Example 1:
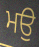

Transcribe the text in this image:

ਮਉ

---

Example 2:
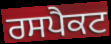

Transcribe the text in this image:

ਰਸਪੈਕਟ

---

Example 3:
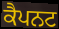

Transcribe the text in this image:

ਕੈਪਨਟ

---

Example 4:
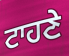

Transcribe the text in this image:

ਟਾਹਣੇ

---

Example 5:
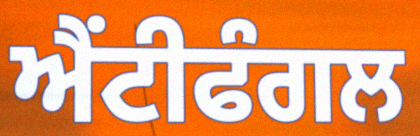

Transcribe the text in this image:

ਐਂਟੀਫੰਗਲ